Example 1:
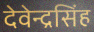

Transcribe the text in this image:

देवेन्द्रसिंह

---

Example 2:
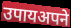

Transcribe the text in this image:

उपायअपने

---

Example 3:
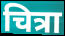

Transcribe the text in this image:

चित्रा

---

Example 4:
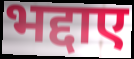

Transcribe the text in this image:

भद्दाए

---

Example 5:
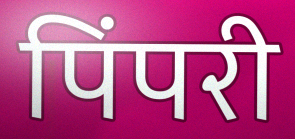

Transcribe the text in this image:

पिंपरी